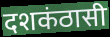
दशकंठासी